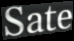
Sate